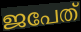
ജപേത്